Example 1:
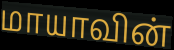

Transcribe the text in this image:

மாயாவின்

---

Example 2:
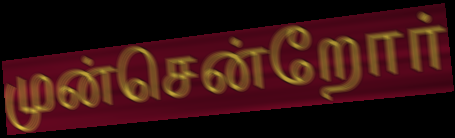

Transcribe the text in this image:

முன்சென்றோர்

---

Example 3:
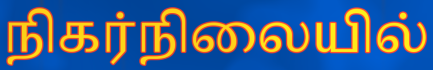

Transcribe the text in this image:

நிகர்நிலையில்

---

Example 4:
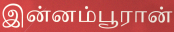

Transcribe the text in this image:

இன்னம்பூரான்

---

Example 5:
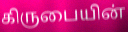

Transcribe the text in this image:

கிருபையின்